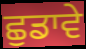
ਛੁਡਾਵੇ